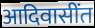
आदिवासींत